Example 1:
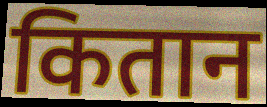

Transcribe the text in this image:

कितान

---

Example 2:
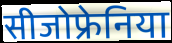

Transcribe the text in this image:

सीजोफ्रेनिया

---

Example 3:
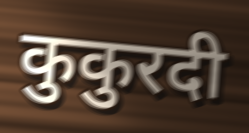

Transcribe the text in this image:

कुकुरदी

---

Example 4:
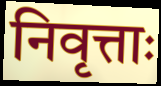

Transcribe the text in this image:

निवृत्ताः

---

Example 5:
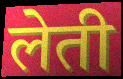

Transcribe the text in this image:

लेती